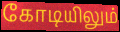
கோடியிலும்